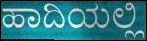
ಹಾದಿಯಲ್ಲಿ